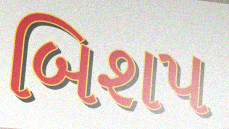
બિશપ